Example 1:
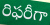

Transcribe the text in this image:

రిఫరీగా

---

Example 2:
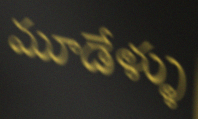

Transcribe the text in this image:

మూడేళ్ళు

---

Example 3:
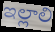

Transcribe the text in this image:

ఇల్లాలి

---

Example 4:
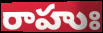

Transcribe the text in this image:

రాహుః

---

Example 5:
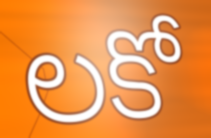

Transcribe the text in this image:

లకో